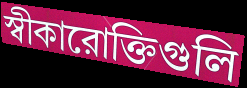
স্বীকারোক্তিগুলি